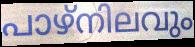
പാഴ്നിലവും